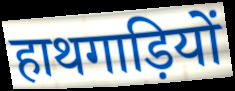
हाथगाड़ियों